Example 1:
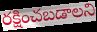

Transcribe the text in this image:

రక్షించబడాలని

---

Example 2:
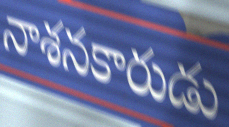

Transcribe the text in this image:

నాశనకారుడు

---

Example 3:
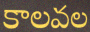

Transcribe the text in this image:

కాలవల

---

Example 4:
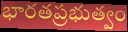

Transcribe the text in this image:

భారతప్రభుత్వం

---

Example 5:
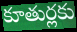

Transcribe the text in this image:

కూతుర్లకు